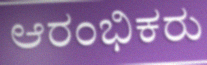
ಆರಂಭಿಕರು